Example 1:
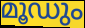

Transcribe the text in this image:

മൂഡും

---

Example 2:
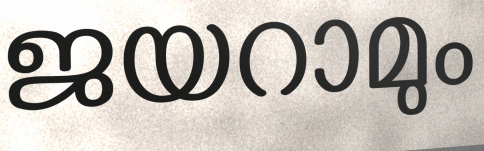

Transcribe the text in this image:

ജയറാമും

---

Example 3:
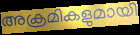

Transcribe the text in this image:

അക്രമികളുമായി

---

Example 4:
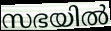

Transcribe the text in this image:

സഭയിൽ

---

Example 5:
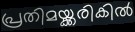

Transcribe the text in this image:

പ്രതിമയ്ക്കരികിൽ